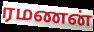
ரமணன்